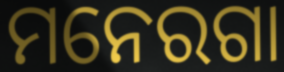
ମନେରଗା